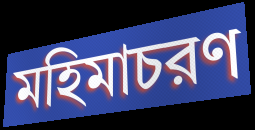
মহিমাচরণ